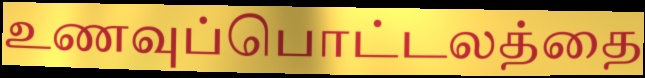
உணவுப்பொட்டலத்தை